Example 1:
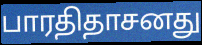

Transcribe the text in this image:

பாரதிதாசனது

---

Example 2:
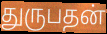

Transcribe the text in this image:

துருபதன்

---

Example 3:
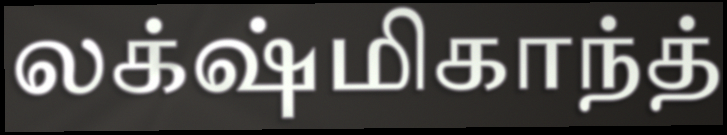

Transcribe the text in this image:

லக்‌ஷ்மிகாந்த்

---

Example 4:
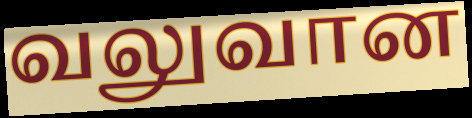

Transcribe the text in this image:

வலுவான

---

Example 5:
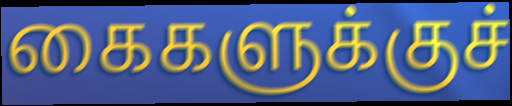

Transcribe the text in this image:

கைகளுக்குச்